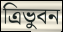
ত্রিভুবন